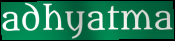
adhyatma